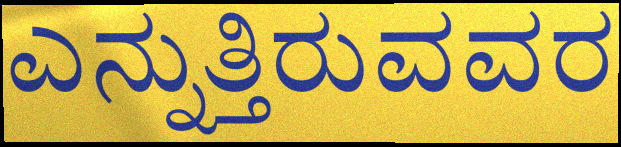
ಎನ್ನುತ್ತಿರುವವರ